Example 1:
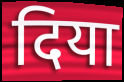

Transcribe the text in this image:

दिया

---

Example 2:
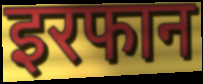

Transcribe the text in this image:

इरफान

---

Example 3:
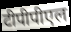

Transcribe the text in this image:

टीपीपीएल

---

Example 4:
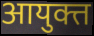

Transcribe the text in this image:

आयुक्त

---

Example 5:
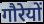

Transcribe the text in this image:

गौरेयों